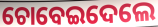
ଚୋବେଇଦେଲେ